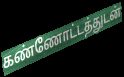
கண்ணோட்டத்துடன்